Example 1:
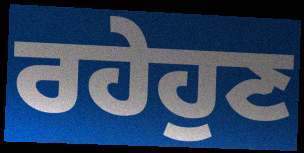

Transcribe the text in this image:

ਰਹੇਹੁਣ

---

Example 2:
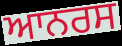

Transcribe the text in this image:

ਆਨਰਸ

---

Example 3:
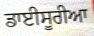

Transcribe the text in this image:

ਡਾਈਸੂਰੀਆ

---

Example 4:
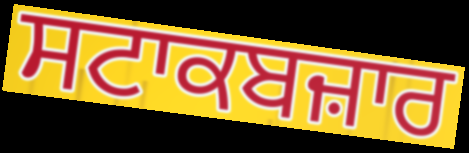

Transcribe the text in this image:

ਸਟਾਕਬਜ਼ਾਰ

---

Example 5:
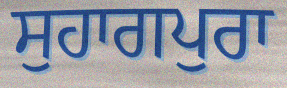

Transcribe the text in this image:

ਸੁਹਾਗਪੁਰਾ